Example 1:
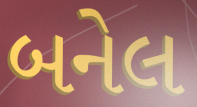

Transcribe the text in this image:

બનેલ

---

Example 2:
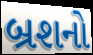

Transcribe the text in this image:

બ્રશનો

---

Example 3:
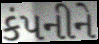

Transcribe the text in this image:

કંપનીને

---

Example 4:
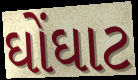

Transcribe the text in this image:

ઘોંઘાટ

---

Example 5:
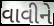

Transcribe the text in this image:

વાવીને